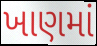
ખાણમાં